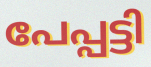
പേപ്പട്ടി